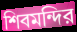
শিবমন্দির